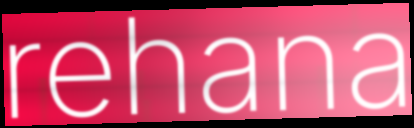
rehana